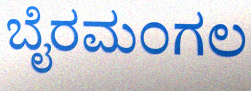
ಬೈರಮಂಗಲ